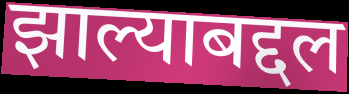
झाल्याबद्दल